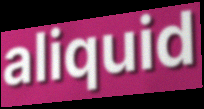
aliquid